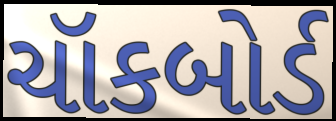
ચૉકબોર્ડ